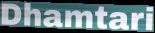
Dhamtari